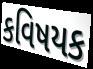
કવિષયક